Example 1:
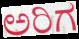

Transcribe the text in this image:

ಅರಿಗ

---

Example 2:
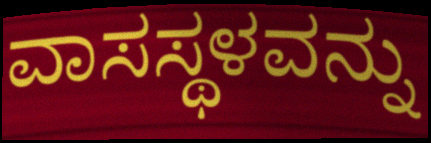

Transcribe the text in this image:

ವಾಸಸ್ಥಳವನ್ನು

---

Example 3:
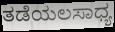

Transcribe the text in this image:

ತಡೆಯಲಸಾಧ್ಯ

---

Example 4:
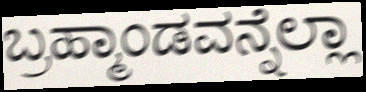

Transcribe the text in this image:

ಬ್ರಹ್ಮಾಂಡವನ್ನೆಲ್ಲಾ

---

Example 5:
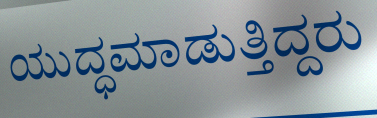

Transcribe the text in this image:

ಯುದ್ಧಮಾಡುತ್ತಿದ್ದರು